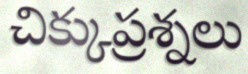
చిక్కుప్రశ్నలు